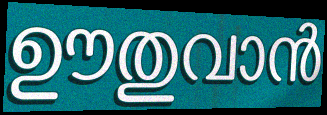
ഊതുവാൻ